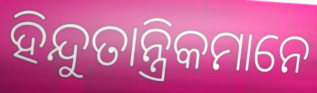
ହିନ୍ଦୁତାନ୍ତ୍ରିକମାନେ